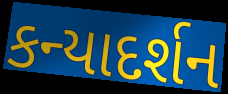
કન્યાદર્શન